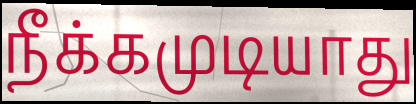
நீக்கமுடியாது